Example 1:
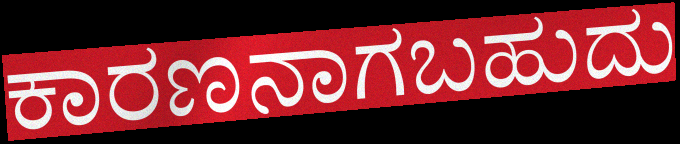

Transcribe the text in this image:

ಕಾರಣನಾಗಬಹುದು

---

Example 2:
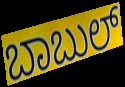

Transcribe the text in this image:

ಬಾಬುಲ್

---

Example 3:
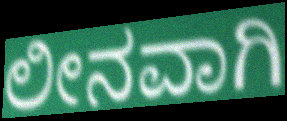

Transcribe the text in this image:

ಲೀನವಾಗಿ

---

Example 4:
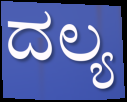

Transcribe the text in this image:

ದಲ್ಯ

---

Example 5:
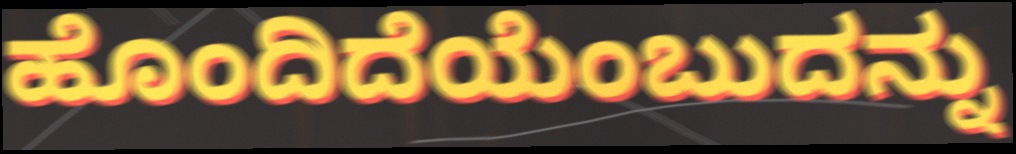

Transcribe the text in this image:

ಹೊಂದಿದೆಯೆಂಬುದನ್ನು